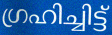
ഗ്രഹിച്ചിട്ട്